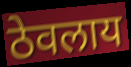
ठेवलाय